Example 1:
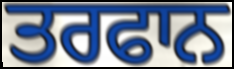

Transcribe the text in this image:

ਤਰਫਾਨ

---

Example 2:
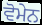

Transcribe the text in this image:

ਵੋਮੇਨ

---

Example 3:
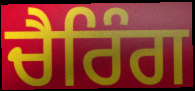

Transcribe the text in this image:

ਚੈਰਿੰਗ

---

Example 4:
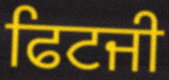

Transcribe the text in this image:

ਫਿਟਜੀ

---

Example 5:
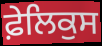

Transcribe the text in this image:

ਫ਼ੇਲਿਕੁਸ